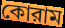
কোরাম